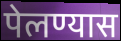
पेलण्यास